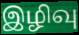
இழிவு